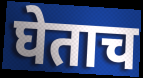
घेताच